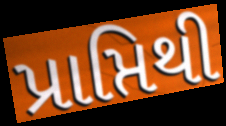
પ્રાપ્તિથી